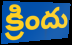
క్రిందు